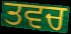
ਤਵਚ